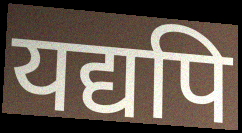
यद्यपि